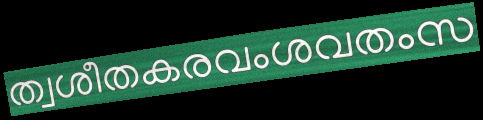
ത്വശീതകരവംശവതംസ